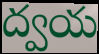
ద్వయ